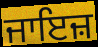
ਜਾਇਜ਼